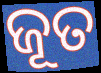
ଜୂତ